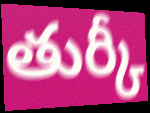
తుర్కీ